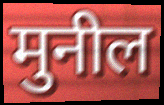
मुनील